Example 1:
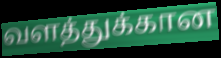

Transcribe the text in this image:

வளத்துக்கான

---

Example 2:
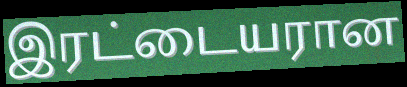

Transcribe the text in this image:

இரட்டையரான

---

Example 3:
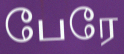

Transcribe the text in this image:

பேரே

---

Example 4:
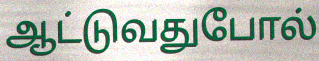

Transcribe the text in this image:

ஆட்டுவதுபோல்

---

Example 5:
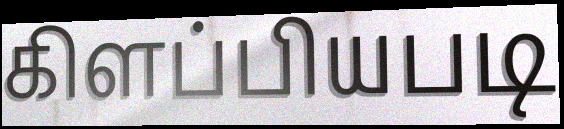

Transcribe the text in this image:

கிளப்பியபடி